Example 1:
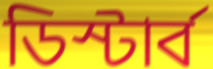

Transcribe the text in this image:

ডিস্টার্ব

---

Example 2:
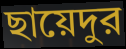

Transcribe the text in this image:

ছায়েদুর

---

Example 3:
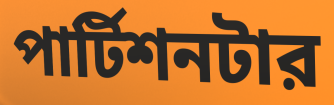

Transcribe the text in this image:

পার্টিশনটার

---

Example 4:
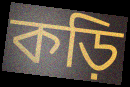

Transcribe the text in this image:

কড়ি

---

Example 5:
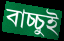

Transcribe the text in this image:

বাচ্চুই